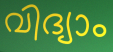
വിദ്യാം